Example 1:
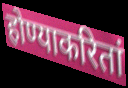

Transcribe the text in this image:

होण्याकरितां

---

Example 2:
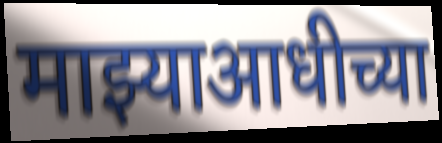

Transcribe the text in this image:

माझ्याआधीच्या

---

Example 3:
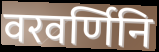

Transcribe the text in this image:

वरवर्णिनि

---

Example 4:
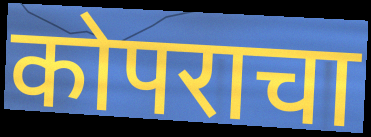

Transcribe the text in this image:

कोपराचा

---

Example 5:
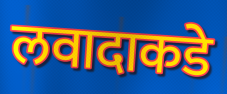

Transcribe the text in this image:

लवादाकडे